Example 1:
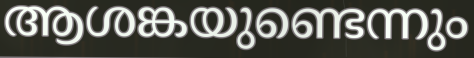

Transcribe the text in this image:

ആശങ്കയുണ്ടെന്നും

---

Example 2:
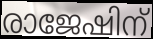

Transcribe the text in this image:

രാജേഷിന്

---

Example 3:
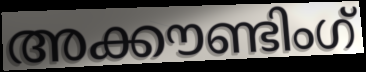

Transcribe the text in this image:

അക്കൗണ്ടിംഗ്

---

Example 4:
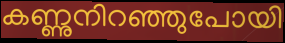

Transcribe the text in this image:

കണ്ണുനിറഞ്ഞുപോയി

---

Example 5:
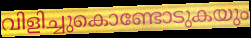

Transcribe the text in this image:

വിളിച്ചുകൊണ്ടോടുകയും